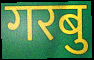
गरबु